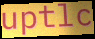
uptlc